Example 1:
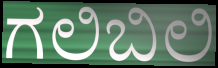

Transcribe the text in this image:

ಗಲಿಬಿಲಿ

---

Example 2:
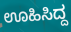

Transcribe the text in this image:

ಊಹಿಸಿದ್ದ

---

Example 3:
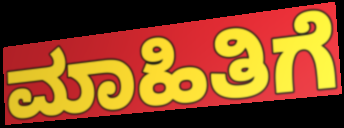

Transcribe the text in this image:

ಮಾಹಿತಿಗೆ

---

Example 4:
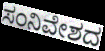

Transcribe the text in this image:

ಸಂನಿವೇಶದ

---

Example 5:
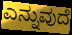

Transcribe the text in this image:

ಎನ್ನುವುದೆ